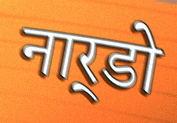
नार्डो